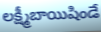
లక్ష్మీబాయిషిండే